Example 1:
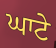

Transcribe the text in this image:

ਘਾਟੇ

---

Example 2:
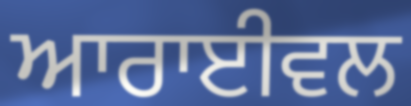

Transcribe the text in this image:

ਆਰਾਈਵਲ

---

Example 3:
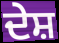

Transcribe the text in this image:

ਦੇਸ਼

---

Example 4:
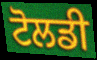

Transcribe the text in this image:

ਟੋਲਡੀ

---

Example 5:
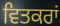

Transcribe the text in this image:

ਵਿਤਕਰਾਂ